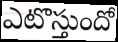
ఎటొస్తుందో